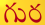
గుర